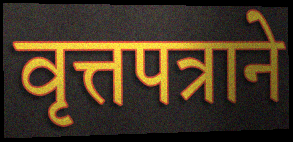
वृत्तपत्राने